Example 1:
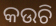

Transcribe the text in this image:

କଉଚି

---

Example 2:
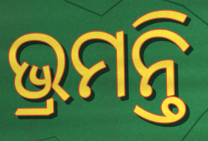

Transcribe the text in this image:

ଭ୍ରମନ୍ତି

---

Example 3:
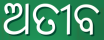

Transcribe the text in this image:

ଅତୀବ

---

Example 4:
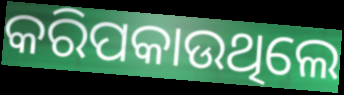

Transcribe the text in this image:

କରିପକାଉଥିଲେ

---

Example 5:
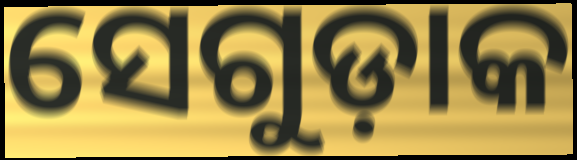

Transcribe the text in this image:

ସେଗୁଡ଼ାକ